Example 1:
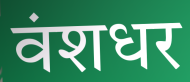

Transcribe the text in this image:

वंशधर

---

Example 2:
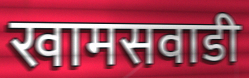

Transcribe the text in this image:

खामसवाडी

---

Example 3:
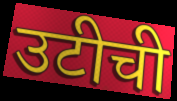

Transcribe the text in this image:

उटीची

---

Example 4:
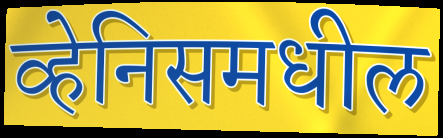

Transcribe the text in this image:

व्हेनिसमधील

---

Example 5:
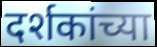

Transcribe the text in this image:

दर्शकांच्या